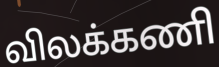
விலக்கணி